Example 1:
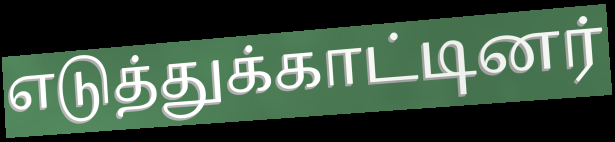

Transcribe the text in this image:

எடுத்துக்காட்டினர்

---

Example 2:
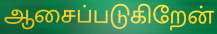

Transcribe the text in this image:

ஆசைப்படுகிறேன்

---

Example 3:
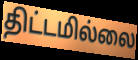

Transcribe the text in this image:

திட்டமில்லை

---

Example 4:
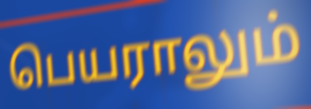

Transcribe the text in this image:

பெயராலும்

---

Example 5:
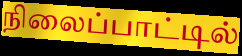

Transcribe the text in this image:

நிலைப்பாட்டில்